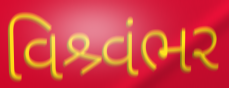
વિશ્ર્વંભર